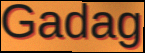
Gadag